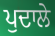
ਪੁਦਾਲੇ